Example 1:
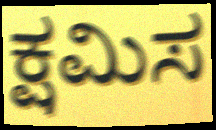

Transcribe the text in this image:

ಕ್ಷಮಿಸ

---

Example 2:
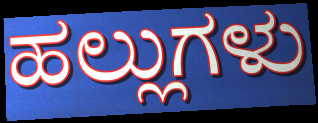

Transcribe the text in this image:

ಹಲ್ಲುಗಳು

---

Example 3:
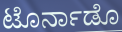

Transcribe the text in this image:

ಟೊರ್ನಾಡೊ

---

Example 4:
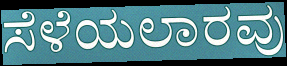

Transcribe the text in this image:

ಸೆಳೆಯಲಾರವು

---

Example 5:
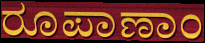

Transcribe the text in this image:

ರೂಪಾಣಾಂ